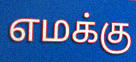
எமக்கு